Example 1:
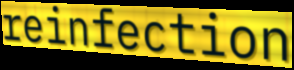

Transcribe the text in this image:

reinfection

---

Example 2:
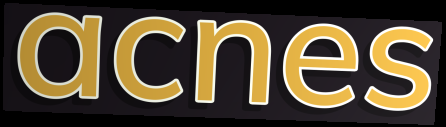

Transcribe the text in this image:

acnes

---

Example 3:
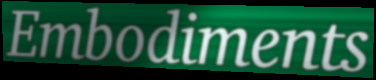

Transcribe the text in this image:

Embodiments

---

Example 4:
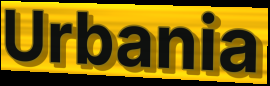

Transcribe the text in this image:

Urbania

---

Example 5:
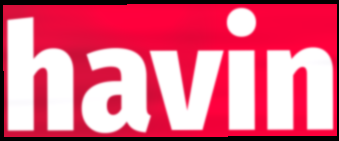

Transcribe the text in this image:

havin